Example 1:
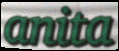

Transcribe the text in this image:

anita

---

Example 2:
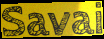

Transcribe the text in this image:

Savai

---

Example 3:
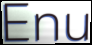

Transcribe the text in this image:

Enu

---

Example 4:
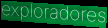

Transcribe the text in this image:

exploradores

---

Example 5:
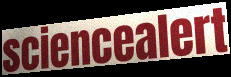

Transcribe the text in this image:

sciencealert